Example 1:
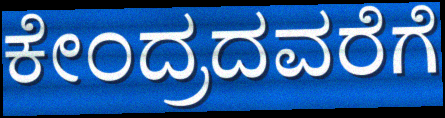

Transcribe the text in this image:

ಕೇಂದ್ರದವರೆಗೆ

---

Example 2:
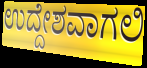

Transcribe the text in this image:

ಉದ್ದೇಶವಾಗಲಿ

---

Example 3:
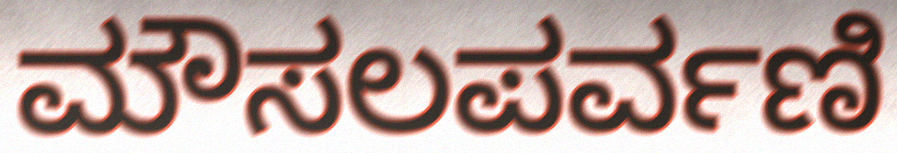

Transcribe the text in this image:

ಮೌಸಲಪರ್ವಣಿ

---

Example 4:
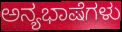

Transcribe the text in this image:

ಅನ್ಯಭಾಷೆಗಳು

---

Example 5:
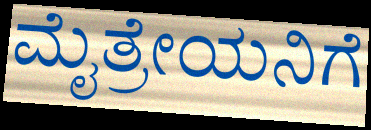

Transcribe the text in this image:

ಮೈತ್ರೇಯನಿಗೆ